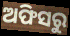
ଅଫିସରୁ